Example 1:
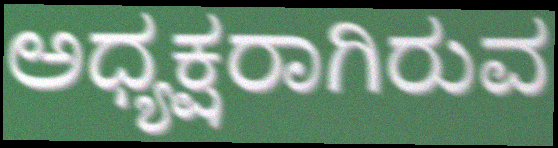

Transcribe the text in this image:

ಅಧ್ಯಕ್ಷರಾಗಿರುವ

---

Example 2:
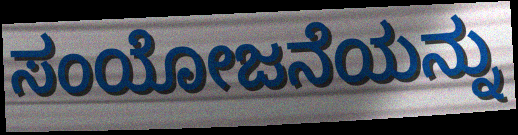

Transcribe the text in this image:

ಸಂಯೋಜನೆಯನ್ನು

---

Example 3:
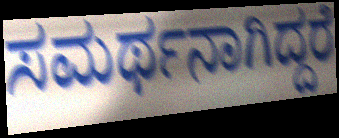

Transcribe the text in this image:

ಸಮರ್ಥನಾಗಿದ್ದರೆ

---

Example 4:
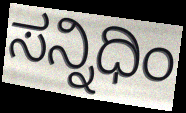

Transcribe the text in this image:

ಸನ್ನಿಧಿಂ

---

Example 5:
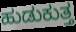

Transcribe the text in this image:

ಹುಡುಕುತ್ತ